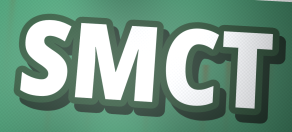
SMCT